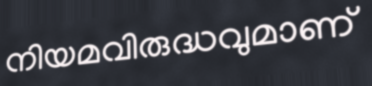
നിയമവിരുദ്ധവുമാണ്